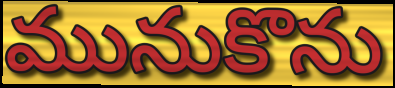
మునుకొను